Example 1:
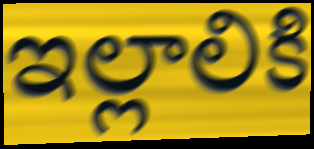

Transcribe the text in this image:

ఇల్లాలికి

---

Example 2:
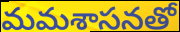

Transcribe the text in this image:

మమశాసనతో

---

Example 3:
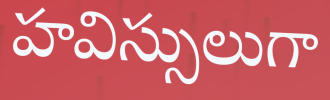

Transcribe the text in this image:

హవిస్సులుగా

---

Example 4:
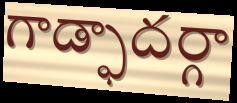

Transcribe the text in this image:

గాడ్ఫాదర్గా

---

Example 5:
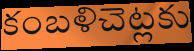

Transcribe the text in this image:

కంబళిచెట్లకు